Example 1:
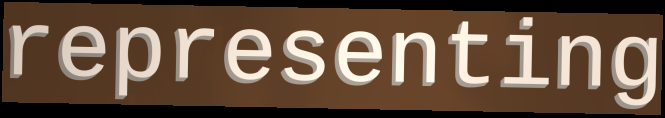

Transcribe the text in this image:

representing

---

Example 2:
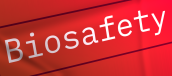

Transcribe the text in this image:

Biosafety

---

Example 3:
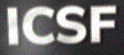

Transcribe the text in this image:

ICSF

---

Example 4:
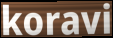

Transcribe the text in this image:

koravi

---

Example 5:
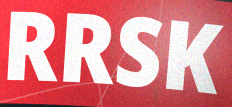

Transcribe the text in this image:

RRSK